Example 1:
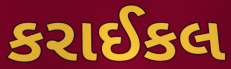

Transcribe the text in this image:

કરાઈકલ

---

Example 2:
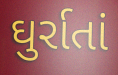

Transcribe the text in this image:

ઘુર્રાતાં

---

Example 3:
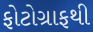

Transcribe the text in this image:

ફોટોગ્રાફથી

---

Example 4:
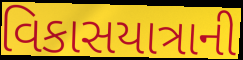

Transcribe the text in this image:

વિકાસયાત્રાની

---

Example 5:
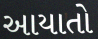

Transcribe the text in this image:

આયાતો